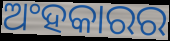
ଅଂହକାରର